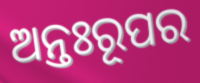
ଅନ୍ତଃରୂପର